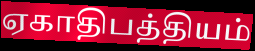
ஏகாதிபத்தியம்